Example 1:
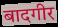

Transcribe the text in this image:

बादगीर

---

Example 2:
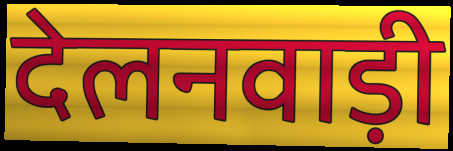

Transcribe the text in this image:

देलनवाड़ी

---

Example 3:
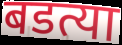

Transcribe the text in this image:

बडत्या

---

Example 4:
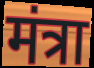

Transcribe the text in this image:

मंत्रा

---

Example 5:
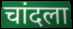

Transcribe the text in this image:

चांदला